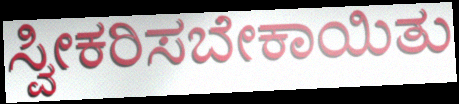
ಸ್ವೀಕರಿಸಬೇಕಾಯಿತು